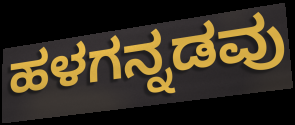
ಹಳಗನ್ನಡವು